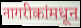
नागरीकांमधून